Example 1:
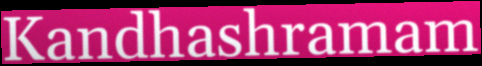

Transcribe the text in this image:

Kandhashramam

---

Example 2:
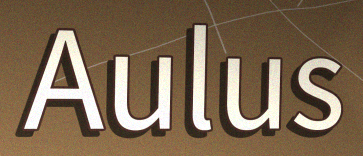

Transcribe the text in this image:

Aulus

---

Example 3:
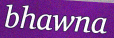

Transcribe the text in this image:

bhawna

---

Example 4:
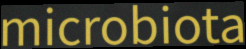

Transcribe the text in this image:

microbiota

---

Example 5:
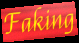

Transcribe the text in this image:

Faking